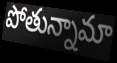
పోతున్నామా